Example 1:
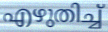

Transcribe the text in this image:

എഴുതിച്ച്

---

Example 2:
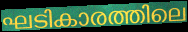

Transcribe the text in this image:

ഘടികാരത്തിലെ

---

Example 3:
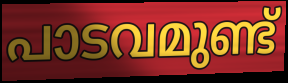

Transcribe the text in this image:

പാടവമുണ്ട്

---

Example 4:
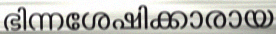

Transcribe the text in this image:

ഭിന്നശേഷിക്കാരായ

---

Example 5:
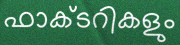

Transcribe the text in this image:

ഫാക്ടറികളും